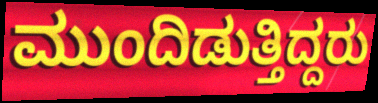
ಮುಂದಿಡುತ್ತಿದ್ದರು